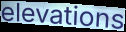
elevations